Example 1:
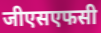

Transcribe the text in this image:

जीएसएफसी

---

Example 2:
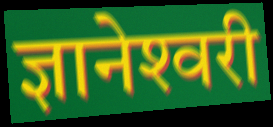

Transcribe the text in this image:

ज्ञानेश्‍वरी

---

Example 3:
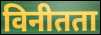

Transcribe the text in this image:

विनीतता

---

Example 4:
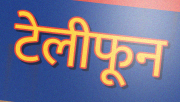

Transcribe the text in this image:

टेलीफून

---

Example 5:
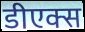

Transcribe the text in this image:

डीएक्स